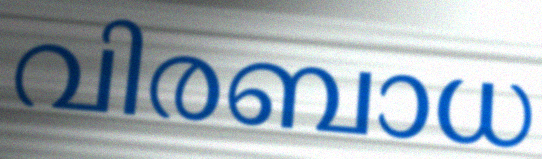
വിരബാധ